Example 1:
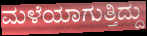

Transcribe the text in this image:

ಮಳೆಯಾಗುತ್ತಿದ್ದು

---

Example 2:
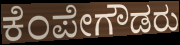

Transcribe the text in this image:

ಕೆಂಪೇಗೌಡರು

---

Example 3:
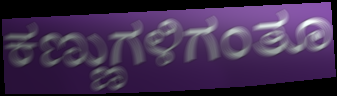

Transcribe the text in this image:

ಕಣ್ಣುಗಳಿಗಂತೂ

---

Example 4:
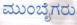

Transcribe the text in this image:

ಮುಂಬೈಗರು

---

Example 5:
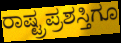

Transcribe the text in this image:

ರಾಷ್ಟ್ರಪ್ರಶಸ್ತಿಗೂ